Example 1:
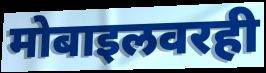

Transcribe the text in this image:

मोबाइलवरही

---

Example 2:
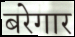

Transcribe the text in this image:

बरेगार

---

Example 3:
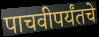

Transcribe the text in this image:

पाचवीपर्यंतचे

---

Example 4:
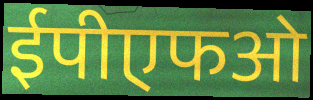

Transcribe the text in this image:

ईपीएफओ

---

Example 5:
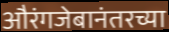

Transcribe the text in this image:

औरंगजेबानंतरच्या